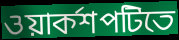
ওয়ার্কশপটিতে